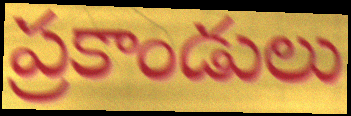
ప్రకాండులు